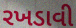
રખડાવી